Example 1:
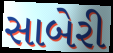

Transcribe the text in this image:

સાબેરી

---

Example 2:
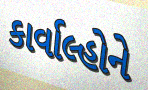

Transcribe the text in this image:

કાર્વાલ્હોને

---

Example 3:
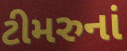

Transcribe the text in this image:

ટીમરુનાં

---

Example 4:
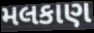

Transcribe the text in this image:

મલકાણ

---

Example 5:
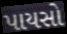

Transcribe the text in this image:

પાયસો